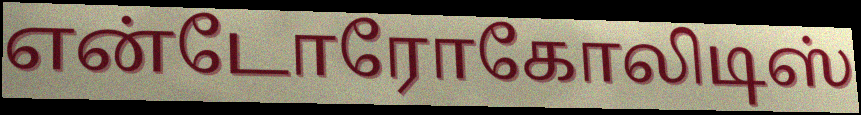
என்டோரோகோலிடிஸ்